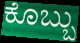
ಕೊಬ್ಬು